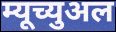
म्यूच्युअल